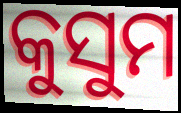
କୁସୁମ